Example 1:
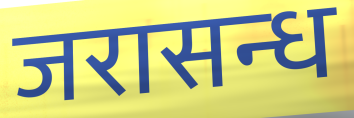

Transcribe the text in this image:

जरासन्ध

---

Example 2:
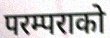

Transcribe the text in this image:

परम्पराको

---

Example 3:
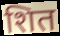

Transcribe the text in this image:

शित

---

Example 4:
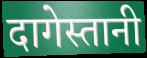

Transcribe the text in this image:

दागेस्तानी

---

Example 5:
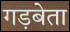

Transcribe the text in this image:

गड़बेता